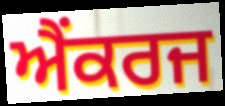
ਐਂਕਰਜ